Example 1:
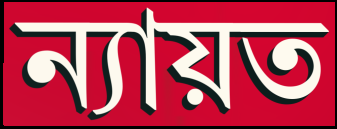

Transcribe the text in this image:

ন্যায়ত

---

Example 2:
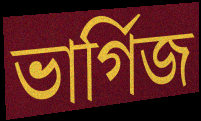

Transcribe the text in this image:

ভাৰ্গিজ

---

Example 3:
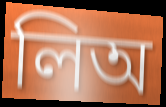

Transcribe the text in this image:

লিঅ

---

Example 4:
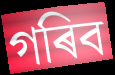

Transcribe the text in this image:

গৰিব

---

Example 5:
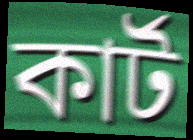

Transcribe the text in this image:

কাৰ্ট